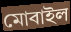
মোবাইল